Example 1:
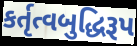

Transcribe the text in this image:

કર્તૃત્વબુદ્ધિરૂપ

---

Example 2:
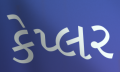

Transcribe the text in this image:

કેપ્લર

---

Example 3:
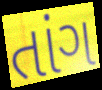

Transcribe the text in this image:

તાંગ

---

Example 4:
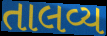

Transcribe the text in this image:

તાલવ્ય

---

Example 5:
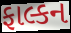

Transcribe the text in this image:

ફાલ્કન